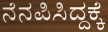
ನೆನಪಿಸಿದ್ದಕ್ಕೆ